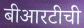
बीआरटीची